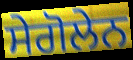
ਸੇਗੋਲੇਨ